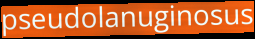
pseudolanuginosus